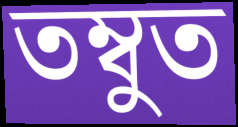
তম্বুত